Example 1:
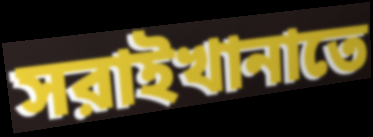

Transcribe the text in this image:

সরাইখানাতে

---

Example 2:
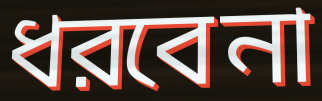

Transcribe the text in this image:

ধরবেনা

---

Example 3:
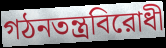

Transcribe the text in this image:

গঠনতন্ত্রবিরোধী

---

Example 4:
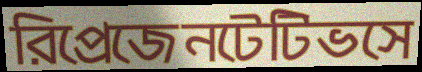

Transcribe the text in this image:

রিপ্রেজেনটেটিভসে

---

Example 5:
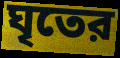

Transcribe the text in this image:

ঘৃতের